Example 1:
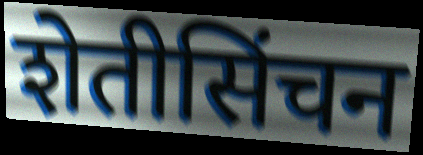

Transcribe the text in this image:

शेतीसिंचन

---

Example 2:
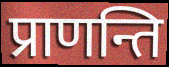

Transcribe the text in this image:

प्राणन्ति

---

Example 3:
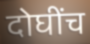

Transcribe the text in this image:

दोघींच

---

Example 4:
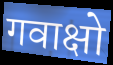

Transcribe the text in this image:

गवाक्षो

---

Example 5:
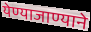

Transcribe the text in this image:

येण्याजाण्याने